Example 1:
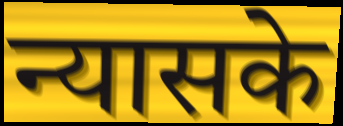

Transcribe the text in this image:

न्यासके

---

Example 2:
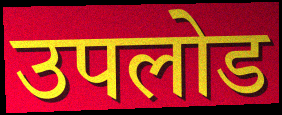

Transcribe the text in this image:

उपलोड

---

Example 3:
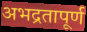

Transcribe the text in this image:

अभद्रतापूर्ण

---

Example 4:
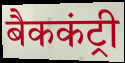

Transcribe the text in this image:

बैककंट्री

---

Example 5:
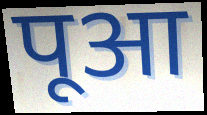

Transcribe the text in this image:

पूआ